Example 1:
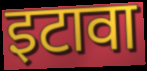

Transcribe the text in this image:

इटावा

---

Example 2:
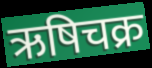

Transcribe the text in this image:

ऋषिचक्र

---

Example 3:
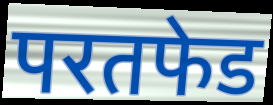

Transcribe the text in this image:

परतफेड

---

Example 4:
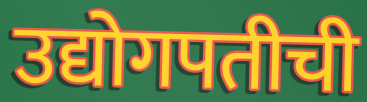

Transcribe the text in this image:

उद्योगपतीची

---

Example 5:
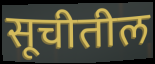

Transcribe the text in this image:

सूचीतील